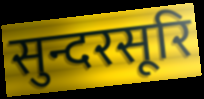
सुन्दरसूरि